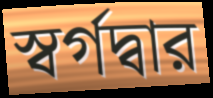
স্বর্গদ্বার